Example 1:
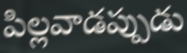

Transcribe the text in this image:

పిల్లవాడప్పుడు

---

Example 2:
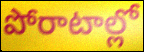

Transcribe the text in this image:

పోరాటాల్లో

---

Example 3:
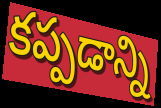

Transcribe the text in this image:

కప్పడాన్ని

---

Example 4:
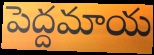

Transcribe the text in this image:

పెద్దమాయ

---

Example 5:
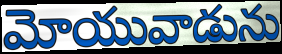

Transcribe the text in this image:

మోయువాడును